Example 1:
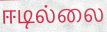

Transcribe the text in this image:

ஈடில்லை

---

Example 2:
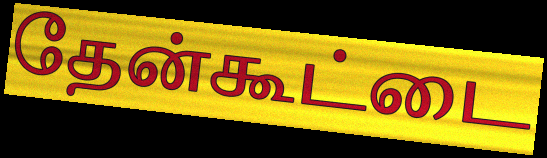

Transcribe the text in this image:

தேன்கூட்டை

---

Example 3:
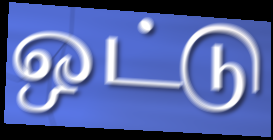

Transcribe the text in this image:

ஒட்டு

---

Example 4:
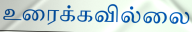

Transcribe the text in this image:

உரைக்கவில்லை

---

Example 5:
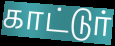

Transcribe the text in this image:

காட்டுர்